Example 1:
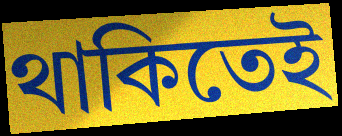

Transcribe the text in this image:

থাকিতেই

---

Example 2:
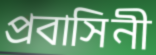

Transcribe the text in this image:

প্রবাসিনী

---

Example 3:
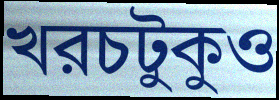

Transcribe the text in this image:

খরচটুকুও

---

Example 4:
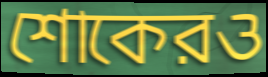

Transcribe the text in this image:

শোকেরও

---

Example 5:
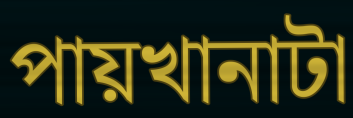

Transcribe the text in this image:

পায়খানাটা